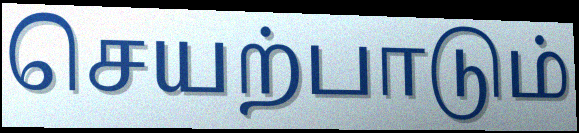
செயற்பாடும்